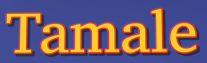
Tamale